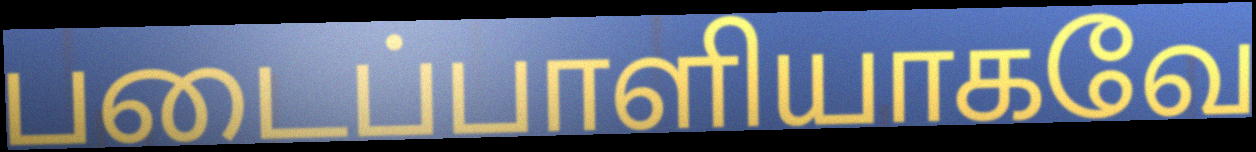
படைப்பாளியாகவே